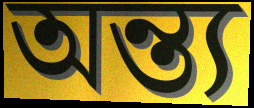
অন্ত্য